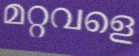
മറ്റവളെ